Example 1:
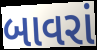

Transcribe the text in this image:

બાવરાં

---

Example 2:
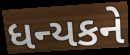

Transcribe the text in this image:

ધન્યકને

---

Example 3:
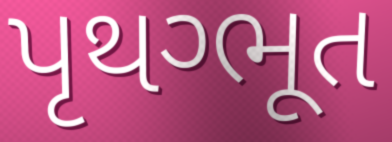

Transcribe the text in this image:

પૃથગ્ભૂત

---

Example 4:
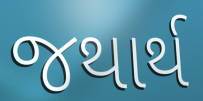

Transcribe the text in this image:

જથાર્થ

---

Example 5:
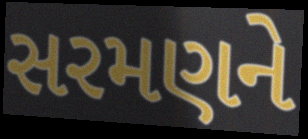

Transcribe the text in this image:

સરમણને